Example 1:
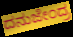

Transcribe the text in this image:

ದನುಜೇಂದ್ರ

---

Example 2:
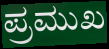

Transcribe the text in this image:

ಪ್ರಮುಖ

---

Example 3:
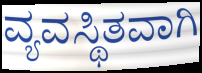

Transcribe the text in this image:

ವ್ಯವಸ್ಥಿತವಾಗಿ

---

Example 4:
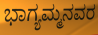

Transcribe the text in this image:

ಭಾಗ್ಯಮ್ಮನವರ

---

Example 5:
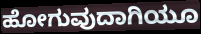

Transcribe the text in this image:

ಹೋಗುವುದಾಗಿಯೂ